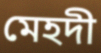
মেহদী